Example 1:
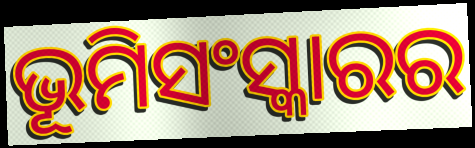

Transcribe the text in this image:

ଭୂମିସଂସ୍କାରର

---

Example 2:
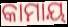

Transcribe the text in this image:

କାମାୟ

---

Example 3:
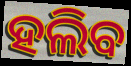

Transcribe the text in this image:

ହଲିବ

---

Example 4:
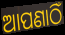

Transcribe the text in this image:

ଆପଣାଠିଁ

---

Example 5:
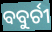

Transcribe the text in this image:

ବବୁର୍ଚୀ